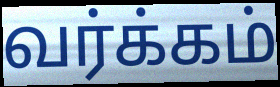
வர்க்கம்